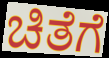
ಚಿತೆಗೆ